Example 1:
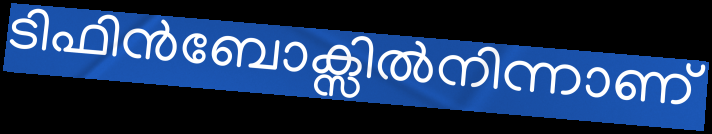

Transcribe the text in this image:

ടിഫിൻബോക്സിൽനിന്നാണ്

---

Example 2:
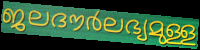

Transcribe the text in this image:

ജലദൗർലഭ്യമുള്ള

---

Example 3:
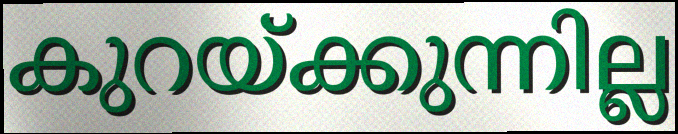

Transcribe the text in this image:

കുറയ്ക്കുന്നില്ല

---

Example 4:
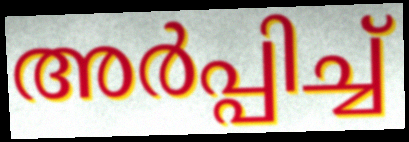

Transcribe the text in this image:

അർപ്പിച്ച്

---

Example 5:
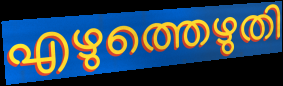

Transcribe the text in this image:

എഴുത്തെഴുതി